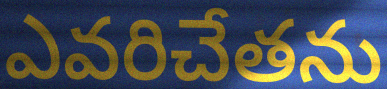
ఎవరిచేతను